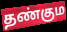
தண்கும